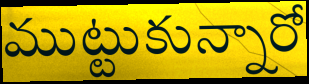
ముట్టుకున్నారో